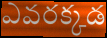
ఎవరక్కడ